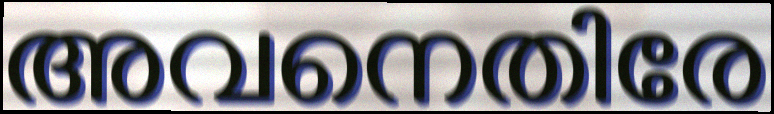
അവനെതിരേ